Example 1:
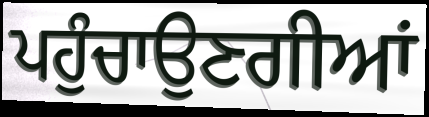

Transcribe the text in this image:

ਪਹੁੰਚਾਉਣਗੀਆਂ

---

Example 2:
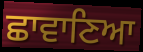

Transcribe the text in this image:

ਛਾਵਾਣਿਆ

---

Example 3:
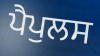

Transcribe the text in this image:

ਪੈਪੁਲਸ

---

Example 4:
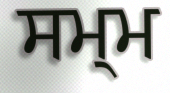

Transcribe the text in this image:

ਸਮ੍ਮ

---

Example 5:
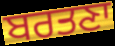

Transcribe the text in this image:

ਬਰਤਣਾ